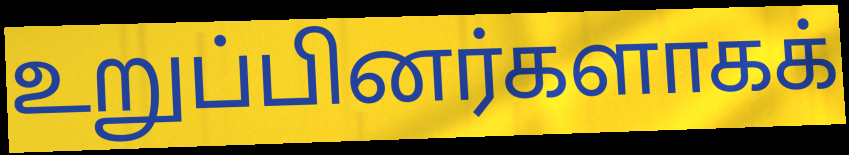
உறுப்பினர்களாகக்